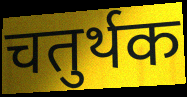
चतुर्थक